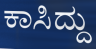
ಕಾಸಿದ್ದು